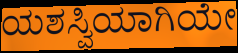
ಯಶಸ್ವಿಯಾಗಿಯೇ